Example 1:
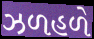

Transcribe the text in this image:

ઝળહળે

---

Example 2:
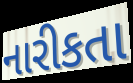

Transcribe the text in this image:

નારીકતા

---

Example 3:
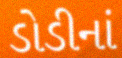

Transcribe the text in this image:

ડોડીનાં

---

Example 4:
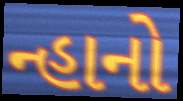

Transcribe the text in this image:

ન્હાનો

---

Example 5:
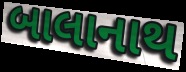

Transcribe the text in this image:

બાલાનાથ